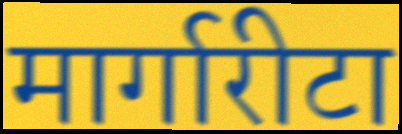
मार्गारीटा